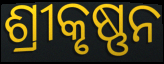
ଶ୍ରୀକୃଷ୍ଣନ